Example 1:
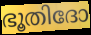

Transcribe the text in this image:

ഭൂതിദോ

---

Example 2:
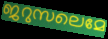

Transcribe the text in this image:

ജറുസലെമേ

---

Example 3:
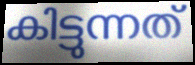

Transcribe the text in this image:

കിട്ടുന്നത്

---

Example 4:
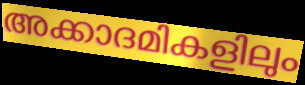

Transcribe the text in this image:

അക്കാദമികളിലും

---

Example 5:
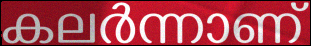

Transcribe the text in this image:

കലർന്നാണ്